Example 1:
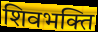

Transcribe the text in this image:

शिवभक्ति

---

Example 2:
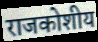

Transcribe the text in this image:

राजकोशीय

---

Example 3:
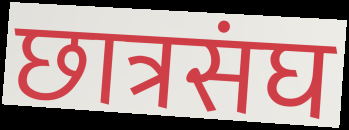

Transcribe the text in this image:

छात्रसंघ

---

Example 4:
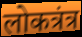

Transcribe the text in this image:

लोकत्रंत्र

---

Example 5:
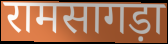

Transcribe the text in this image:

रामसागड़ा